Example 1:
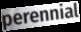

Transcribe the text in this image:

perennial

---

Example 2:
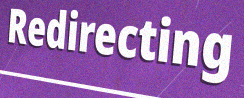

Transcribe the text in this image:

Redirecting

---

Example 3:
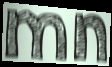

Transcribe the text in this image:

mn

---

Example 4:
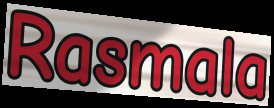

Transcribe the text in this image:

Rasmala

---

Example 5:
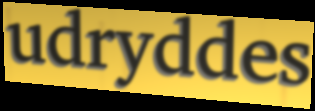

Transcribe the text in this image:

udryddes